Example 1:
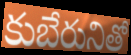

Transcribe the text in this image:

కుబేరునితో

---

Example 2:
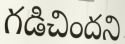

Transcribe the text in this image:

గడిచిందని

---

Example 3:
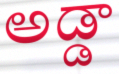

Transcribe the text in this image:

అడ్డా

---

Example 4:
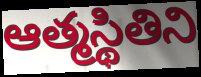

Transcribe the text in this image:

ఆత్మస్థితిని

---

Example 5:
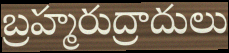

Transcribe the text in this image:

బ్రహ్మరుద్రాదులు